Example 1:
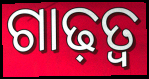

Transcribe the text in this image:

ଗାଢ଼ତ୍ବ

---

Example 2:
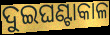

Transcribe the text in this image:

ଦୁଇଘଣ୍ଟାକାଳ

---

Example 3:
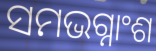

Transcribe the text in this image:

ସମଭଗ୍ନାଂଶ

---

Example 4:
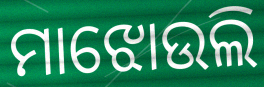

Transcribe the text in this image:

ମାଝୋଉଲି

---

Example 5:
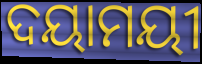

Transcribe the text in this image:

ଦୟାମୟୀ